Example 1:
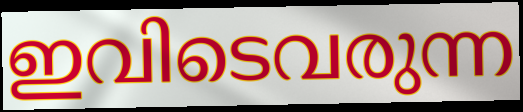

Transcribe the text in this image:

ഇവിടെവരുന്ന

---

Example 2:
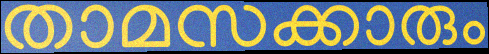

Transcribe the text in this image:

താമസക്കാരും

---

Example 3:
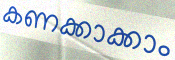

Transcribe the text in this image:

കണക്കാക്കാം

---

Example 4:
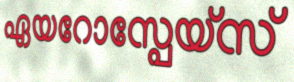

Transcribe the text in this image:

ഏയറോസ്പേയ്സ്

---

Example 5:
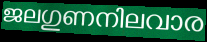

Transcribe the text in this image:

ജലഗുണനിലവാര